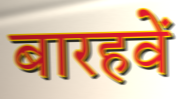
बारहवें